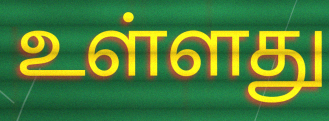
உள்ளது